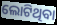
ଲୋଟିଥିବା